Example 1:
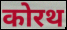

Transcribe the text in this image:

कोरथ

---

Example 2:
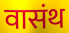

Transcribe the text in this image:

वासंथ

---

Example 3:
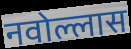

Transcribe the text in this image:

नवोल्लास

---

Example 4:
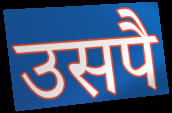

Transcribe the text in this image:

उसपै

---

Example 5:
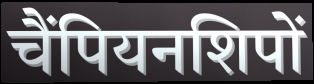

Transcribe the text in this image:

चैंपियनशिपों